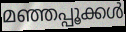
മഞ്ഞപ്പൂക്കൾ